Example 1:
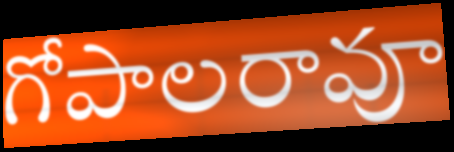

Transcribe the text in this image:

గోపాలరావూ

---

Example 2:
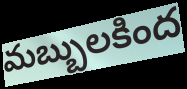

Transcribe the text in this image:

మబ్బులకింద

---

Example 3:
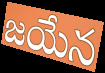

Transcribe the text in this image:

జయేన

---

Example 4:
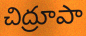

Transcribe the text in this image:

చిద్రూపా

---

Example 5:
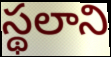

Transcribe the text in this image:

స్థలాని